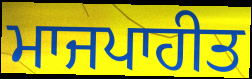
ਮਾਜਪਾਹੀਤ